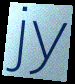
jy